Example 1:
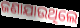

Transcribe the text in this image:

ଜଣାଯାଉଥିଲେ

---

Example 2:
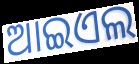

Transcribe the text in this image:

ଆଇଏଲ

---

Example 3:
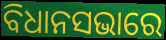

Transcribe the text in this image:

ବିଧାନସଭାରେ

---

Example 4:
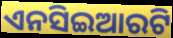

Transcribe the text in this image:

ଏନସିଇଆରଟି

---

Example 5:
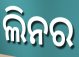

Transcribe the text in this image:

ଲିନର